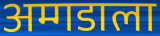
अम्गडाला